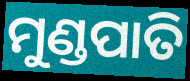
ମୁଣ୍ଡପାତି